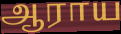
ஆராய